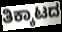
ತಿಕ್ಕಾಟದ